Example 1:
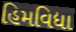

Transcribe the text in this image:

હિમવિદ્યા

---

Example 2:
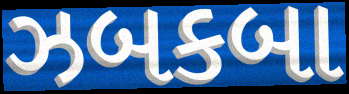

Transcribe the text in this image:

ઝબકબા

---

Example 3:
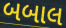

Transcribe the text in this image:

બબાલ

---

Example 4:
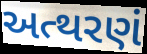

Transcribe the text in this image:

અત્થરણં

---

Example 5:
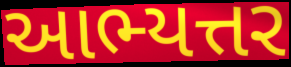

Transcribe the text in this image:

આભ્યત્તર